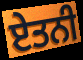
ਏਤਨੀ